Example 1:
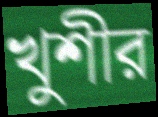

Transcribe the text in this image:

খুশীর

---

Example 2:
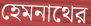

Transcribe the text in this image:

হেমনাথের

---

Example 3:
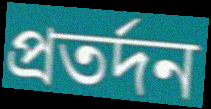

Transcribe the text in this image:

প্রতর্দন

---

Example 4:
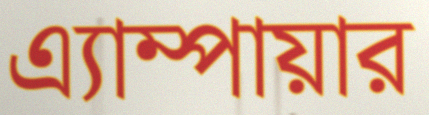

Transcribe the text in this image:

এ্যাম্পায়ার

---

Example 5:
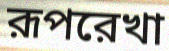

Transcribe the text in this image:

রূপরেখা